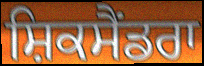
ਸ਼ਿਕਸੈਂਡਰਾ